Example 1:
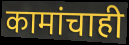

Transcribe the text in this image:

कामांचाही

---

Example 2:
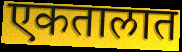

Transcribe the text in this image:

एकतालात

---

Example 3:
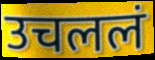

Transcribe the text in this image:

उचललं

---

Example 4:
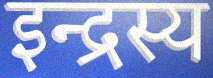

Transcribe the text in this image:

इन्द्रस्य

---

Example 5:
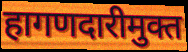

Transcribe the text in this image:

हागणदारीमुक्त